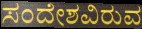
ಸಂದೇಶವಿರುವ